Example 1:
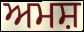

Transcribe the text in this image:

ਅਮਸ਼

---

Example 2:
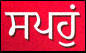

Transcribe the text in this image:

ਸਪਹੁਂ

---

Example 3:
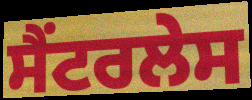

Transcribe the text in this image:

ਸੈਂਟਰਲੇਸ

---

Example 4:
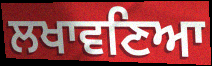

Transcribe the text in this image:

ਲਖਾਵਣਿਆ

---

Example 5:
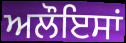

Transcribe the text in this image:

ਅਲੌਇਸਾਂ